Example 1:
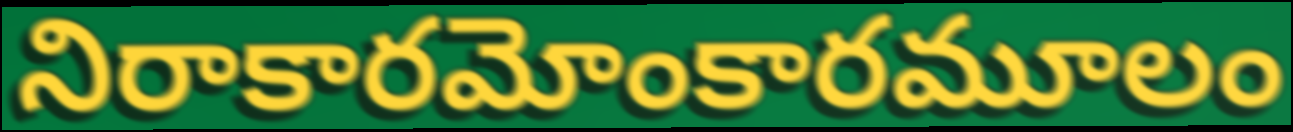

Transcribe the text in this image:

నిరాకారమోంకారమూలం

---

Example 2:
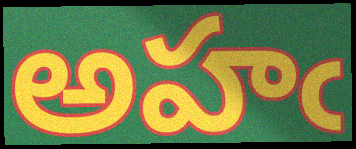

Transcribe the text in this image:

అహఁ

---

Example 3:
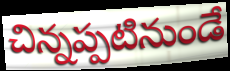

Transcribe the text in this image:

చిన్నప్పటినుండే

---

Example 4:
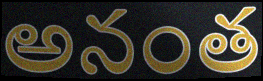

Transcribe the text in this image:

అనంత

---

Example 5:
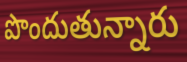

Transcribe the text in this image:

పొందుతున్నారు